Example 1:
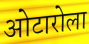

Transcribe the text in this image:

ओटारोला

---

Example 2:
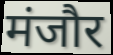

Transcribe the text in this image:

मंजौर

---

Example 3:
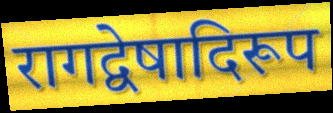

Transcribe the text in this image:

रागद्वेषादिरूप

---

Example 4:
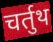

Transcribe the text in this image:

चर्तुथ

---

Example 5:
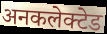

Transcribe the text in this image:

अनकलेक्टेड